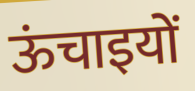
ऊंचाइयों